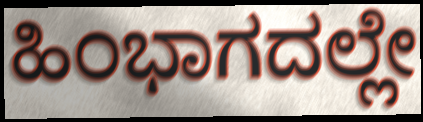
ಹಿಂಭಾಗದಲ್ಲೇ